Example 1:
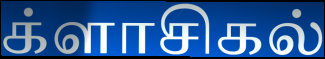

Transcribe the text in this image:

க்ளாசிகல்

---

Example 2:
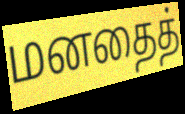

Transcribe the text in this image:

மனதைத்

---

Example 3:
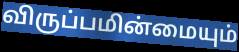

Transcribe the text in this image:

விருப்பமின்மையும்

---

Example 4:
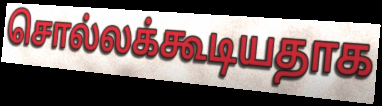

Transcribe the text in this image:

சொல்லக்கூடியதாக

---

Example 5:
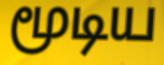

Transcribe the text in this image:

மூடிய